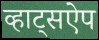
व्हाट्सऐप